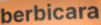
berbicara